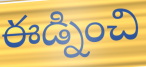
ఈడ్నించి